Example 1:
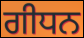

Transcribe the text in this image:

ਗੀਧਨ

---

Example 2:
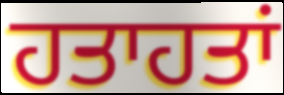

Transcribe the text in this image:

ਹਤਾਹਤਾਂ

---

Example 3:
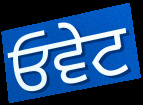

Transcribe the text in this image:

ਓਵੇਟ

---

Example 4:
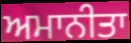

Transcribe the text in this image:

ਅਮਾਨੀਤਾ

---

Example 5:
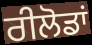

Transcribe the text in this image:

ਰੀਲੋਡਾਂ